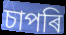
চাপৰি